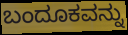
ಬಂದೂಕವನ್ನು